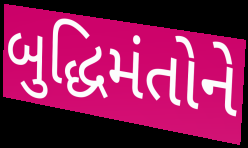
બુદ્ધિમંતોને